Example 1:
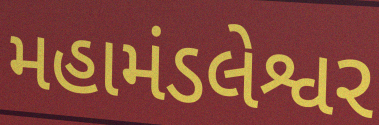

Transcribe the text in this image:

મહામંડલેશ્વર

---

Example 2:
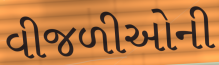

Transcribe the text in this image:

વીજળીઓની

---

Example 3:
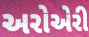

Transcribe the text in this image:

અરોએરી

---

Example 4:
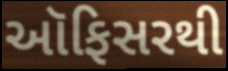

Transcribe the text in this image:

ઑફિસરથી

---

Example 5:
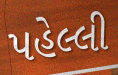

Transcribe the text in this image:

પહેલ્લી